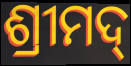
ଶ୍ରୀମଦ୍